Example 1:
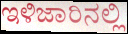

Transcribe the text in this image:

ಇಳಿಜಾರಿನಲ್ಲಿ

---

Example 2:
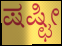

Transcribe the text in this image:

ಷಷ್ಟೀ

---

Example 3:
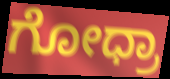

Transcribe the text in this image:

ಗೋಧ್ರಾ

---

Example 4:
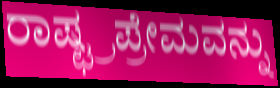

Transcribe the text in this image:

ರಾಷ್ಟ್ರಪ್ರೇಮವನ್ನು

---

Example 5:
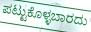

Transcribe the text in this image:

ಪಟ್ಟುಕೊಳ್ಳಬಾರದು